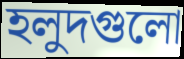
হলুদগুলো